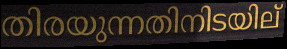
തിരയുന്നതിനിടയില്